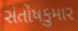
સંતોષકુમાર